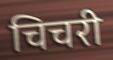
चिचरी